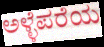
ಅಳ್ಳೆಪರೆಯ